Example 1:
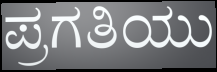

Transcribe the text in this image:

ಪ್ರಗತಿಯು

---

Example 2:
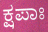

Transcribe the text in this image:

ಕ್ಷಪಾಃ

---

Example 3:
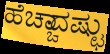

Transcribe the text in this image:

ಹೆಚ್ಚಾದಷ್ಟು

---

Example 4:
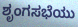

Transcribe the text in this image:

ಶೃಂಗಸಭೆಯು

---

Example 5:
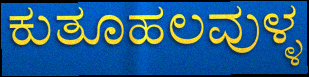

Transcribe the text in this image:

ಕುತೂಹಲವುಳ್ಳ